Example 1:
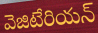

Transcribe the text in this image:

వెజిటేరియన్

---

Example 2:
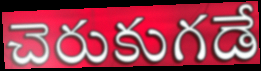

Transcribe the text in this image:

చెరుకుగడే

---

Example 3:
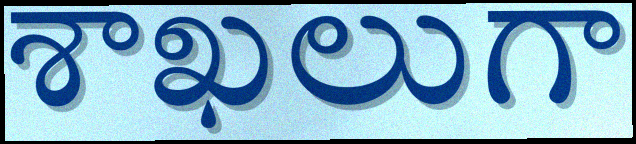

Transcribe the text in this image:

శాఖలుగా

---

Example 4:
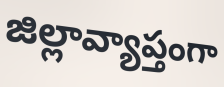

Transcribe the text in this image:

జిల్లావ్యాప్తంగా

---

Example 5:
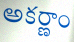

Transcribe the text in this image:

అకర్ణాం